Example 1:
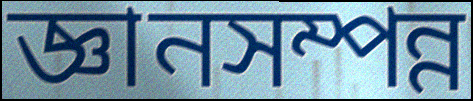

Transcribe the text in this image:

জ্ঞানসম্পন্ন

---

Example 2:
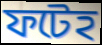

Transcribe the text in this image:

ফটেহ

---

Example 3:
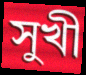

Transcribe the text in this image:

সুখী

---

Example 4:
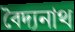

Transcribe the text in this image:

বৈদ্যনাথ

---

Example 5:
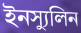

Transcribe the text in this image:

ইনস্যুলিন